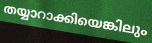
തയ്യാറാക്കിയെങ്കിലും